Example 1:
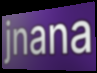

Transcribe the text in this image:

jnana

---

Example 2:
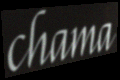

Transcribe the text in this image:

chama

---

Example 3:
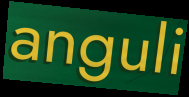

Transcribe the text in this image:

anguli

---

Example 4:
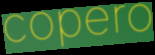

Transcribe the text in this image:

copero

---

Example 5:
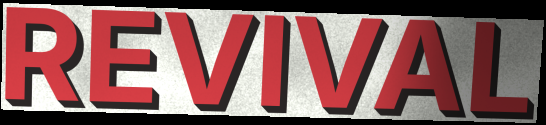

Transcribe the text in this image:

REVIVAL